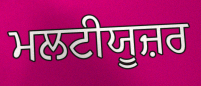
ਮਲਟੀਯੂਜ਼ਰ